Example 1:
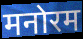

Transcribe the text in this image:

मनोरम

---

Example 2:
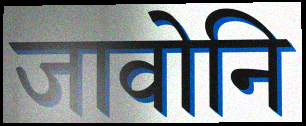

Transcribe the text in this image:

जावोनि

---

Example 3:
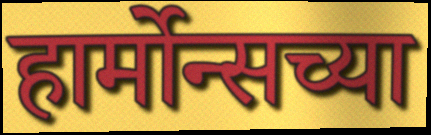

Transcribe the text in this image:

हार्मोन्सच्या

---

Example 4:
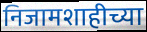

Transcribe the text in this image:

निजामशाहीच्या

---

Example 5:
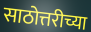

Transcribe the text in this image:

साठोत्तरीच्या